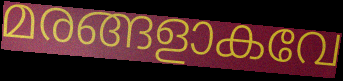
മരങ്ങളാകവേ